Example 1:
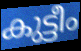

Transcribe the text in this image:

കുട്ടീം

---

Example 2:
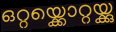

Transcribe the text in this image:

ഒറ്റയ്ക്കൊറ്റയ്ക്കു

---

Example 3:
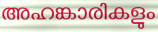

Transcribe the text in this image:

അഹങ്കാരികളും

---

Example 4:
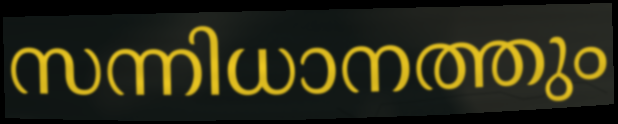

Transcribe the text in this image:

സന്നിധാനത്തും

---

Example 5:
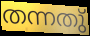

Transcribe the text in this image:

തന്നതു്